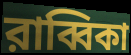
রাব্বিকা